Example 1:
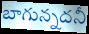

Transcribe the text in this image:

బాగున్నదనీ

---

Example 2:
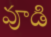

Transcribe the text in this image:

వూడి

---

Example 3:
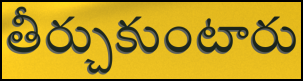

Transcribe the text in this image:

తీర్చుకుంటారు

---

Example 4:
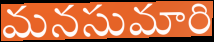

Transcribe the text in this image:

మనసుమారి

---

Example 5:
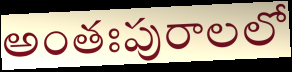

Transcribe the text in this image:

అంతఃపురాలలో